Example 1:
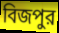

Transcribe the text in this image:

বিজপুর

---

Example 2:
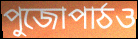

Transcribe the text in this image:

পুজোপাঠও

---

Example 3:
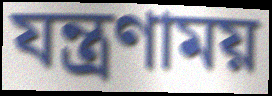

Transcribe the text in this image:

যন্ত্রণাময়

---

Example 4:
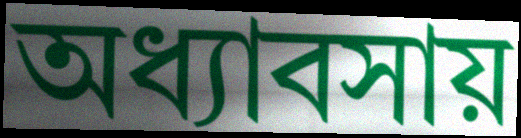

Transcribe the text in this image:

অধ্যাবসায়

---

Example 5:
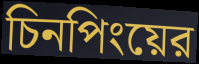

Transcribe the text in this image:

চিনপিংয়ের